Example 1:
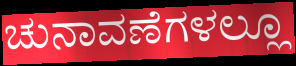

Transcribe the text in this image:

ಚುನಾವಣೆಗಳಲ್ಲೂ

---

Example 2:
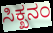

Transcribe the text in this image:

ಸಿಕ್ಖನಂ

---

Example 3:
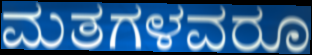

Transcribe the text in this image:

ಮತಗಳವರೂ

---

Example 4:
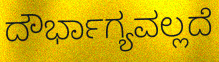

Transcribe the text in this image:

ದೌರ್ಭಾಗ್ಯವಲ್ಲದೆ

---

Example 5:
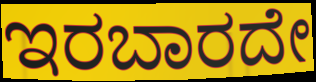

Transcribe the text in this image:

ಇರಬಾರದೇ